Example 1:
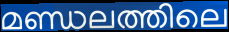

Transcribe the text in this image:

മണ്ഡലത്തിലെ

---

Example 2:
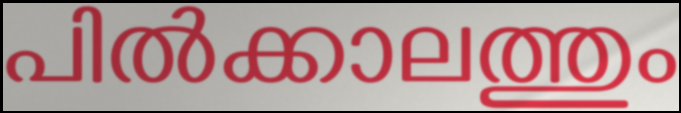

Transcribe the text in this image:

പിൽക്കാലത്തും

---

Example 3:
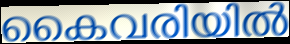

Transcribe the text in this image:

കൈവരിയിൽ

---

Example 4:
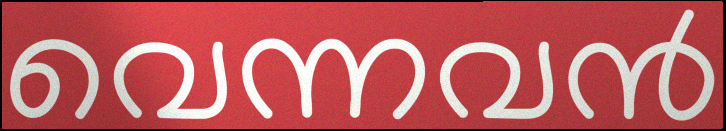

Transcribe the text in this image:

വെന്നവൻ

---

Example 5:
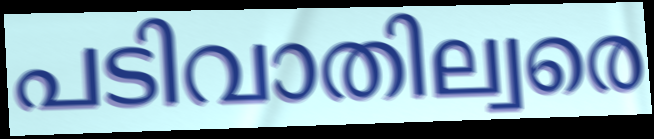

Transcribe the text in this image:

പടിവാതില്വരെ